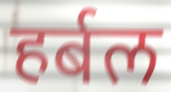
हर्बल